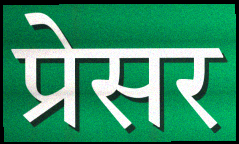
प्रेसर